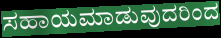
ಸಹಾಯಮಾಡುವುದರಿಂದ